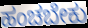
ಹಂಚಬೇಕು